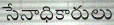
సేనాధికారులు